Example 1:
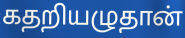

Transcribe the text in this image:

கதறியழுதான்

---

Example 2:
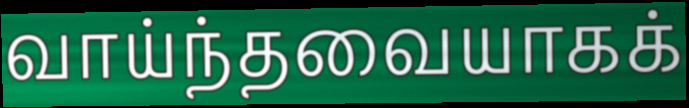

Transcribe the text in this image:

வாய்ந்தவையாகக்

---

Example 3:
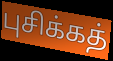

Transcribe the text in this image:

புசிக்கத்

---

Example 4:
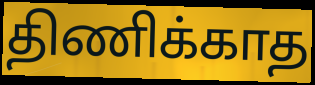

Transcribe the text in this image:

திணிக்காத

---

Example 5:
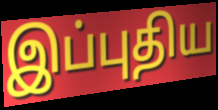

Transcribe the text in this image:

இப்புதிய